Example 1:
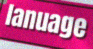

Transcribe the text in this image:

lanuage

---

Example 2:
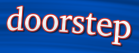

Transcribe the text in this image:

doorstep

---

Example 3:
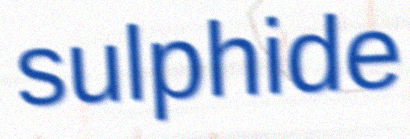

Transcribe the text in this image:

sulphide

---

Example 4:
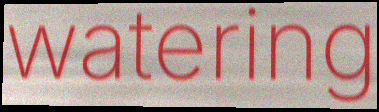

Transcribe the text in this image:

watering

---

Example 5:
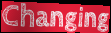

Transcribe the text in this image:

Changing